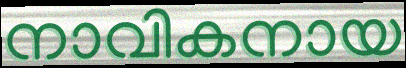
നാവികനായ